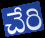
చేరి